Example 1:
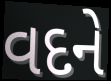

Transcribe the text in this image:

વદને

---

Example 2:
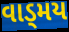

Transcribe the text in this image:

વાડ્મય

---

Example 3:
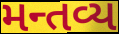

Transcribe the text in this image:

મન્તવ્ય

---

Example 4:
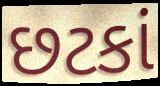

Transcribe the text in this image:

છટકાં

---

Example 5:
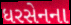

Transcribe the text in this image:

ધરસેનના